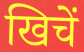
खिचें